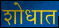
शोधात